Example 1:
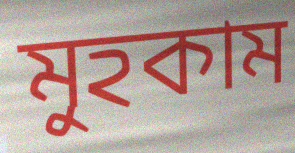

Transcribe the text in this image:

মুহকাম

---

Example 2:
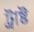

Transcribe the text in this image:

ট্ৰাষ্ট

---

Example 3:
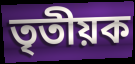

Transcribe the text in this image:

তৃতীয়ক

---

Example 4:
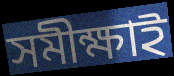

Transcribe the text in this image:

সমীক্ষাই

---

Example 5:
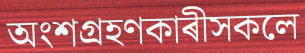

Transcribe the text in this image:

অংশগ্ৰহণকাৰীসকলে